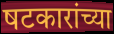
षटकारांच्या